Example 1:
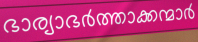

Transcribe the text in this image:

ഭാര്യാഭർത്താക്കന്മാർ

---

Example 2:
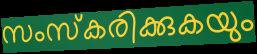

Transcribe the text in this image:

സംസ്കരിക്കുകയും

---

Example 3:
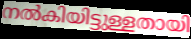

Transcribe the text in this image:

നൽകിയിട്ടുള്ളതായി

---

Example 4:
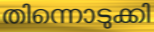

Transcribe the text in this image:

തിന്നൊടുക്കി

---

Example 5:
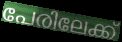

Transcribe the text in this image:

പേരിലേക്ക്